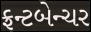
ફ્રન્ટબેન્ચર